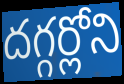
దగ్గర్లోని